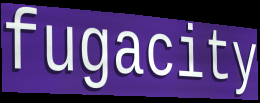
fugacity